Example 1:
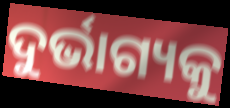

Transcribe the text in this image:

ଦୁର୍ଭାଗ୍ୟକୁ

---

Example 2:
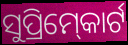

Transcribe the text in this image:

ସୁପ୍ରିମ୍‍କୋର୍ଟ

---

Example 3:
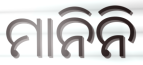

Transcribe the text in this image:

ମାନିନି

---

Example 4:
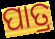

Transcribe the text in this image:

ପାତ୍ର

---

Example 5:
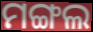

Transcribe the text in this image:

ମଙ୍ଗଲ